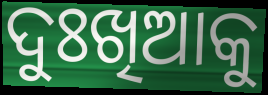
ଦୁଃଖିଆକୁ